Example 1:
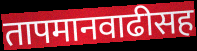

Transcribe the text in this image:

तापमानवाढीसह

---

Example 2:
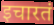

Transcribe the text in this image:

इचारतं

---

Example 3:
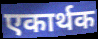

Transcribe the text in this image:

एकार्थक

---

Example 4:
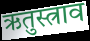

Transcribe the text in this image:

ऋतुस्त्राव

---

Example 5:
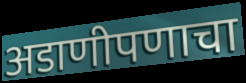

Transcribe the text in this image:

अडाणीपणाचा